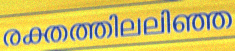
രക്തത്തിലലിഞ്ഞ